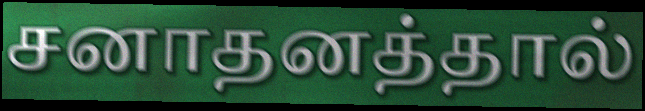
சனாதனத்தால்